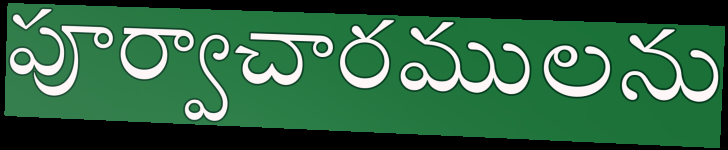
పూర్వాచారములను